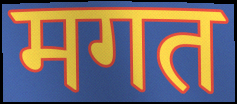
मगत